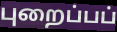
புறைப்பப்